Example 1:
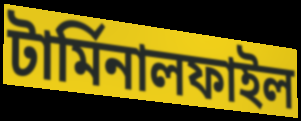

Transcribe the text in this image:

টার্মিনালফাইল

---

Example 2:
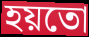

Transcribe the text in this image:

হয়তো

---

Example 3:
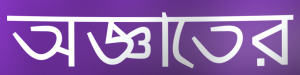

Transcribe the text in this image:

অজ্ঞাতের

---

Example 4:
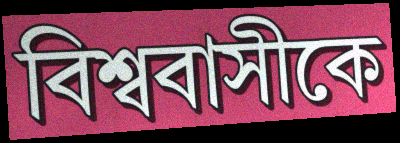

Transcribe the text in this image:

বিশ্ববাসীকে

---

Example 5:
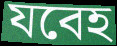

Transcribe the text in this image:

যবেহ